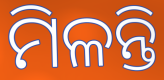
ମିଳନ୍ତି